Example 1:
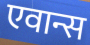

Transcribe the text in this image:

एवान्स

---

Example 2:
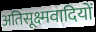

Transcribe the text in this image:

अतिसूक्ष्मवादियों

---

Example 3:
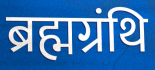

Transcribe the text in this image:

ब्रह्मग्रंथि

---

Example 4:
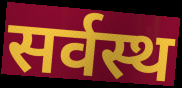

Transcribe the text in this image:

सर्वस्थ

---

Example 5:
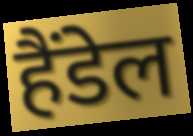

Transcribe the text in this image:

हैंडेल